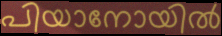
പിയാനോയിൽ